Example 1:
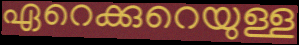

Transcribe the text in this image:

ഏറെക്കുറെയുള്ള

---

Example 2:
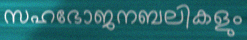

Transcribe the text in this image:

സഹഭോജനബലികളും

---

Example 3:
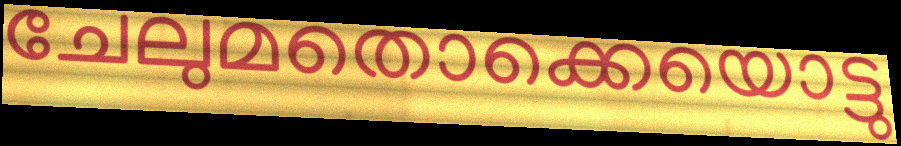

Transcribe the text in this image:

ചേലുമതൊക്കെയൊട്ടു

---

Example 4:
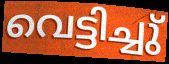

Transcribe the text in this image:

വെട്ടിച്ചു്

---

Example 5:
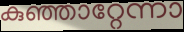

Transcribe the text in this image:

കുഞ്ഞാറ്റേന്നാ